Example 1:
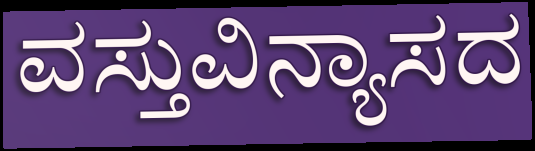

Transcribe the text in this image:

ವಸ್ತುವಿನ್ಯಾಸದ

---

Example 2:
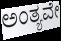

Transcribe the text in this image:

ಅಂತ್ಯವೇ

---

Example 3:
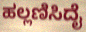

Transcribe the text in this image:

ಹಲ್ಲಣಿಸಿದೈ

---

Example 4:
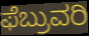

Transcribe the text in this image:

ಫೆಬ್ರುವರಿ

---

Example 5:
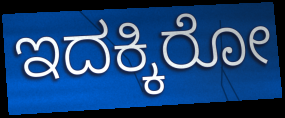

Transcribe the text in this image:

ಇದಕ್ಕಿರೋ